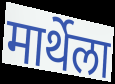
मार्थेला